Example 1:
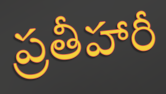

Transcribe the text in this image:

ప్రతీహారీ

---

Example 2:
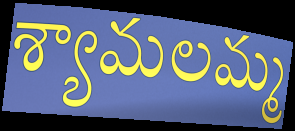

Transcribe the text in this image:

శ్యామలమ్మ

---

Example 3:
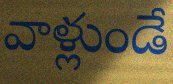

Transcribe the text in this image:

వాళ్లుండే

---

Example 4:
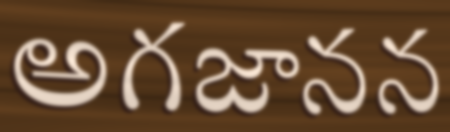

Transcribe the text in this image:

అగజానన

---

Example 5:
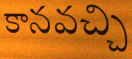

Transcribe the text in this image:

కానవచ్చి